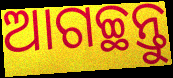
ଆଗଚ୍ଛନ୍ତୁ